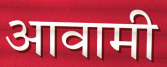
आवामी